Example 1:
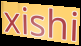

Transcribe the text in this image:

xishi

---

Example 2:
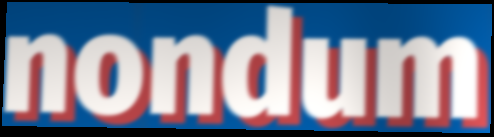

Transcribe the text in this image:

nondum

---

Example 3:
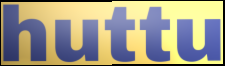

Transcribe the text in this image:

huttu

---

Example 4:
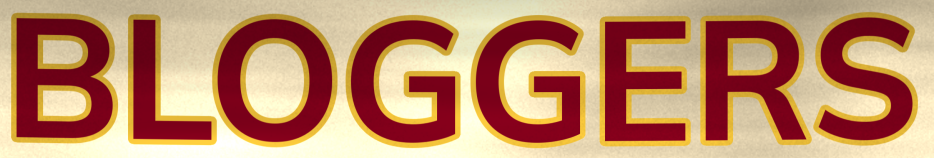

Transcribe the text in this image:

BLOGGERS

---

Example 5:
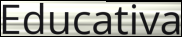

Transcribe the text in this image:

Educativa